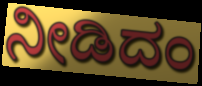
ನೀಡಿದಂ